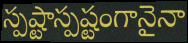
స్పష్టాస్పష్టంగానైనా